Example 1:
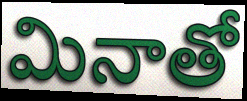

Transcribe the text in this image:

మినాతో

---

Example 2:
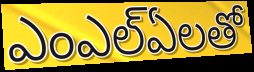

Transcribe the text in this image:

ఎంఎల్ఏలతో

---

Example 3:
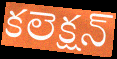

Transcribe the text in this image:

కలెక్షన్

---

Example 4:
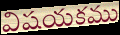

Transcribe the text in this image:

విషయకము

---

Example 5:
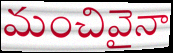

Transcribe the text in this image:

మంచివైనా